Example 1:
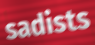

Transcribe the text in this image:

sadists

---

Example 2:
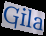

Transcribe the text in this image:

Gila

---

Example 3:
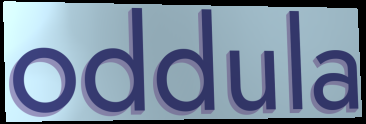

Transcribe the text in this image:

oddula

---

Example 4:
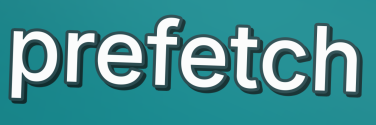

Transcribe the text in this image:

prefetch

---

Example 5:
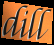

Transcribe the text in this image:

dill